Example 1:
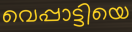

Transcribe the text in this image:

വെപ്പാട്ടിയെ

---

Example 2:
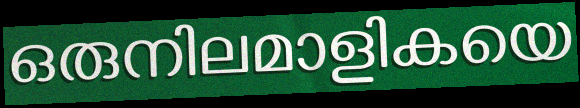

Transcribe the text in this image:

ഒരുനിലമാളികയെ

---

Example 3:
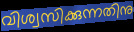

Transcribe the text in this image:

വിശ്വസിക്കുന്നതിനു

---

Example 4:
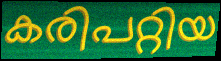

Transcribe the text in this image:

കരിപറ്റിയ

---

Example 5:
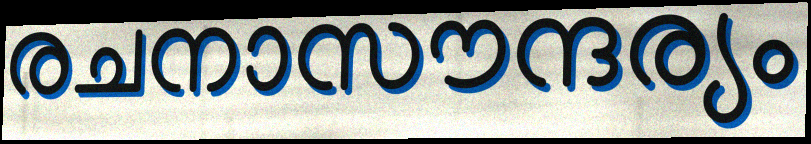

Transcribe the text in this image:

രചനാസൗന്ദര്യം